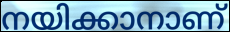
നയിക്കാനാണ്